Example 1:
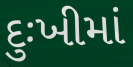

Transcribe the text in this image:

દુઃખીમાં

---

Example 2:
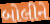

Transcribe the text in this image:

બોલીને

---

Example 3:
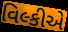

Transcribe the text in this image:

વિલ્કીએ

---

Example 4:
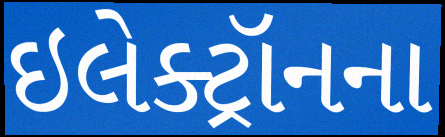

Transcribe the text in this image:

ઇલેક્ટ્રૉનના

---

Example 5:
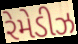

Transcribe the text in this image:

રેમેડીઝ